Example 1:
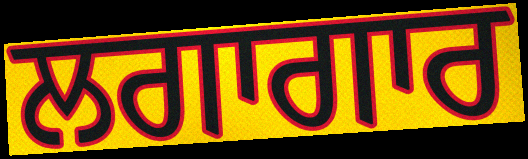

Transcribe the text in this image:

ਲਗਾਗਾਰ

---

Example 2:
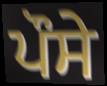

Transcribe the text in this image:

ਪੌਸੇ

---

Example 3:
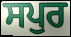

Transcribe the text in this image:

ਸਪੁਰ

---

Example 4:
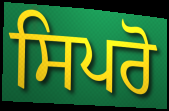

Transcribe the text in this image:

ਸਿਪਰੋ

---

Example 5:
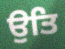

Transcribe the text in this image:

ਉਤਿ